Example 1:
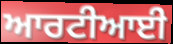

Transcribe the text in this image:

ਆਰਟੀਆਈ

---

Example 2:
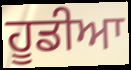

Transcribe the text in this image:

ਹੂਡੀਆ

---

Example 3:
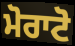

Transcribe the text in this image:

ਮੋਰਾਟੋ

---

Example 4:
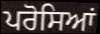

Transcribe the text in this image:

ਪਰੋਸਿਆਂ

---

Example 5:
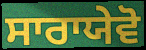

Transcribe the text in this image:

ਸਾਰਾਯੇਵੋ